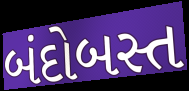
બંદોબસ્ત